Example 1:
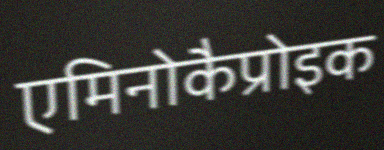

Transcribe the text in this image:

एमिनोकैप्रोइक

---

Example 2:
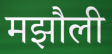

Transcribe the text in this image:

मझौली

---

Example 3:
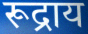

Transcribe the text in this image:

रूद्राय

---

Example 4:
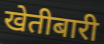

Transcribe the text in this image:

खेतीबारी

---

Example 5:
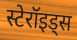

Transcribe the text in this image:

स्टेरॉइड्स